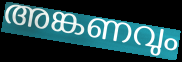
അങ്കണവും